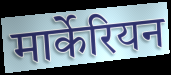
मार्केरियन